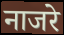
नाजरे